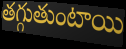
తగ్గుతుంటాయి